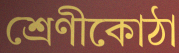
শ্ৰেণীকোঠা